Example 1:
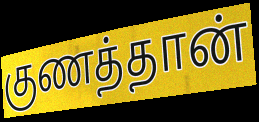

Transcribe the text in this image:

குணத்தான்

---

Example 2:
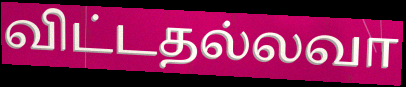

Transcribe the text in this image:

விட்டதல்லவா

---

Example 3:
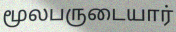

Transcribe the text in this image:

மூலபருடையார்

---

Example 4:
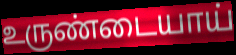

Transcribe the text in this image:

உருண்டையாய்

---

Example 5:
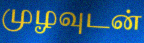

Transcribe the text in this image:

முழவுடன்